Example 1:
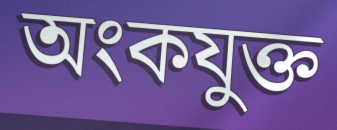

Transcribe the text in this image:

অংকযুক্ত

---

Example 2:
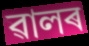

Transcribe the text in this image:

ৱালৰ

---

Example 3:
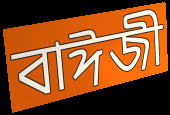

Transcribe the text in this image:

বাঈজী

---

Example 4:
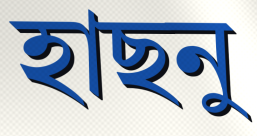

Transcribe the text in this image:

হাছনু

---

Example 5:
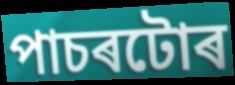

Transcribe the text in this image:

পাচৰটোৰ